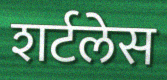
शर्टलेस